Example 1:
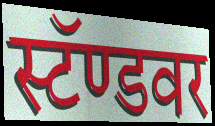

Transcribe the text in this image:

स्टॅण्डवर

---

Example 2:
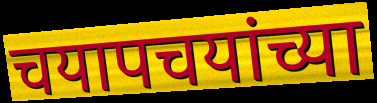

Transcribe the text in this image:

चयापचयांच्या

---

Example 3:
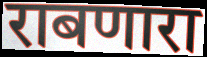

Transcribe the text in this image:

राबणारा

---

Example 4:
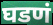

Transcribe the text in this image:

घडणं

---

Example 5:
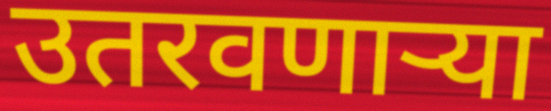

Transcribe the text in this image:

उतरवणाऱ्या